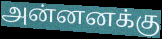
அன்னனக்கு